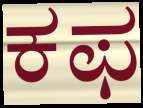
ಕಫ